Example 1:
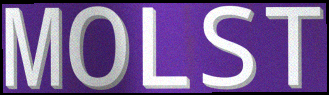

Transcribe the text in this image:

MOLST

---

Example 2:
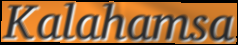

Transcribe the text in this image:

Kalahamsa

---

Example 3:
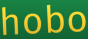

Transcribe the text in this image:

hobo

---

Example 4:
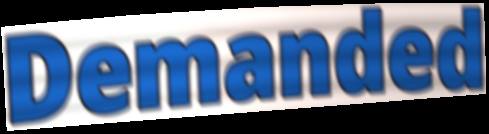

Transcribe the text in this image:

Demanded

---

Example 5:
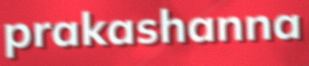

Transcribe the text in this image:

prakashanna